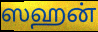
ஸஹன்